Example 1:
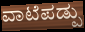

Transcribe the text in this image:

ವಾಟೆಪಡ್ಪು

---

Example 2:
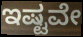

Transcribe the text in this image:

ಇಷ್ಟವೇ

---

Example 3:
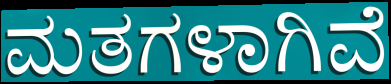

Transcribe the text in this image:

ಮತಗಳಾಗಿವೆ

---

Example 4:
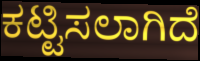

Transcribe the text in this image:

ಕಟ್ಟಿಸಲಾಗಿದೆ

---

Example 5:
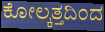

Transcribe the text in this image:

ಕೋಲ್ಕತ್ತದಿಂದ